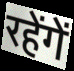
रहेंगें